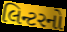
લિન્ટરનો